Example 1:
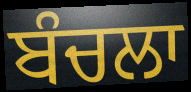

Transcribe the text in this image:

ਬੰਚਲਾ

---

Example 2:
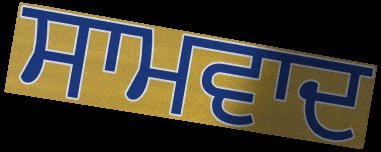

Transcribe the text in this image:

ਸਾਮਵਾਦ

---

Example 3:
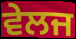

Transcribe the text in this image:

ਵੇਲਜ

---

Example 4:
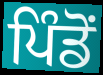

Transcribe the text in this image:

ਪਿੰਡੋਂ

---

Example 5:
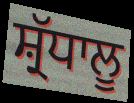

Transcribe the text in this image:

ਸ਼੍ਰੱਧਾਲੂ